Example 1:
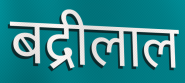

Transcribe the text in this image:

बद्रीलाल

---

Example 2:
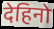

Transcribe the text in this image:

देहिनो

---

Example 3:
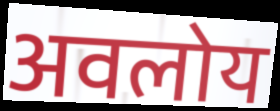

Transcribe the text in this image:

अवलोय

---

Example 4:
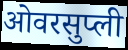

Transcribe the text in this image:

ओवरसुप्ली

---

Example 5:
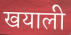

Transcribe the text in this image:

खयाली